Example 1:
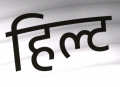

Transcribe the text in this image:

हिल्ट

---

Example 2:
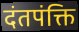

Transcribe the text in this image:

दंतपंक्ति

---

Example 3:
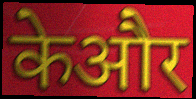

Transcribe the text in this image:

केऔर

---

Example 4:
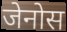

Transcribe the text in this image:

जेनोस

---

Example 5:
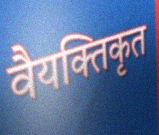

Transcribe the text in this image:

वैयक्तिकृत